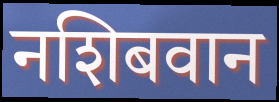
नशिबवान